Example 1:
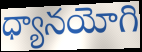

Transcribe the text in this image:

ధ్యానయోగి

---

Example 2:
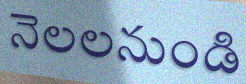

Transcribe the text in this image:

నెలలనుండి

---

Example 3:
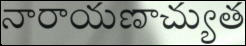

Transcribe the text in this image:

నారాయణాచ్యుత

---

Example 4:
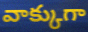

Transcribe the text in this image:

వాక్కుగా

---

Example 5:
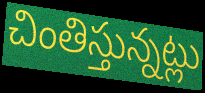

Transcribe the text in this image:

చింతిస్తున్నట్లు